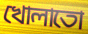
খোলাতো